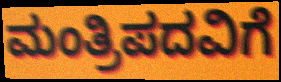
ಮಂತ್ರಿಪದವಿಗೆ